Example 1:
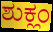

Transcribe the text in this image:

ಶುಕ್ಲಂ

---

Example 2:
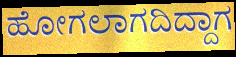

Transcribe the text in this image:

ಹೋಗಲಾಗದಿದ್ದಾಗ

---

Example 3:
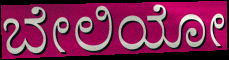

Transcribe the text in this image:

ಬೇಲಿಯೋ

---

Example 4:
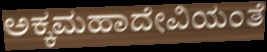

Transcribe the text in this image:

ಅಕ್ಕಮಹಾದೇವಿಯಂತೆ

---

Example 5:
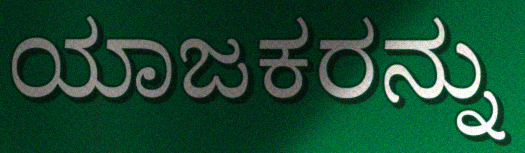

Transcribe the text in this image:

ಯಾಜಕರನ್ನು